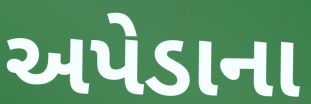
અપેડાના